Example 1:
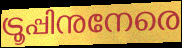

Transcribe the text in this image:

ട്രൂപ്പിനുനേരെ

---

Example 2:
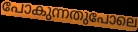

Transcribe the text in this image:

പോകുന്നതുപോലെ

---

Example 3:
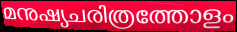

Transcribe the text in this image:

മനുഷ്യചരിത്രത്തോളം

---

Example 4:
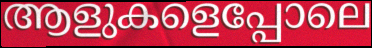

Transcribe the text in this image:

ആളുകളെപ്പോലെ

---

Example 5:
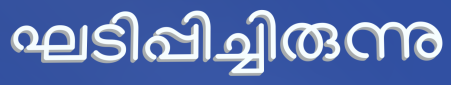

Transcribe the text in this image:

ഘടിപ്പിച്ചിരുന്നു